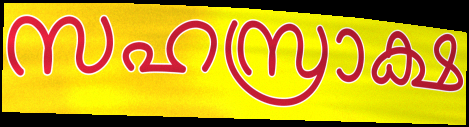
സഹസ്രാക്ഷ